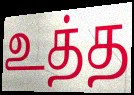
உத்த